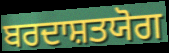
ਬਰਦਾਸ਼ਤਯੋਗ